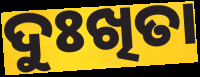
ଦୁଃଖିତା